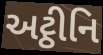
અટ્ઠીનિ